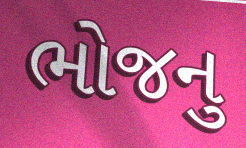
ભોજનુ